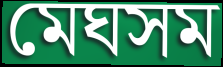
মেঘসম